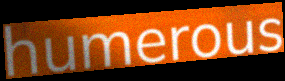
humerous